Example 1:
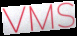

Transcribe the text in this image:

VMS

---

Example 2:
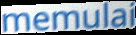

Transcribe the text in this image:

memulai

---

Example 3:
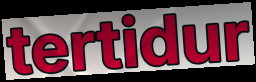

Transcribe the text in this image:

tertidur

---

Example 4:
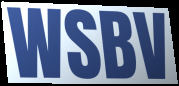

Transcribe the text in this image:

WSBV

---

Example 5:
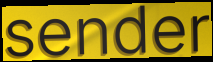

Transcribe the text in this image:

sender